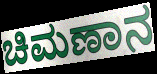
ಚಿಮಣಾನ